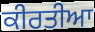
ਕੀਰਤੀਆ